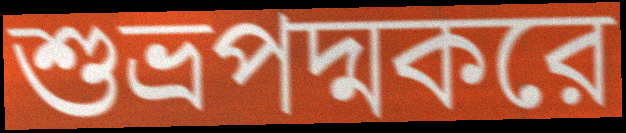
শুভ্রপদ্মকরে